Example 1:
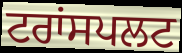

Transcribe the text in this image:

ਟਰਾਂਸਪਲਟ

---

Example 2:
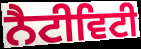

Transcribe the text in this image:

ਨੈਟੀਵਿਟੀ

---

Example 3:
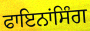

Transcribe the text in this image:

ਫਾਇਨਾਂਸਿੰਗ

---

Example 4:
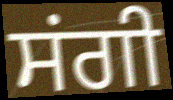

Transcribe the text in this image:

ਸਂਗੀ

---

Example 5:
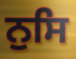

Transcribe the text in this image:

ਨੁਸਿ